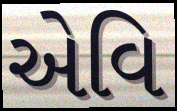
એવિ